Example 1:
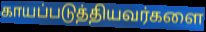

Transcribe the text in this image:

காயப்படுத்தியவர்களை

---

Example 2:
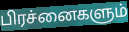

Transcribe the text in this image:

பிரச்னைகளும்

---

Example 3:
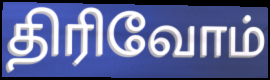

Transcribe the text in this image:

திரிவோம்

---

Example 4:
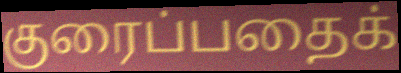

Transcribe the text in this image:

குரைப்பதைக்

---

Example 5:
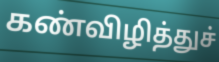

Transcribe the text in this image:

கண்விழித்துச்